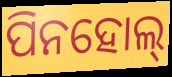
ପିନହୋଲ୍